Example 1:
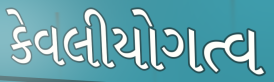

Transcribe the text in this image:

કેવલીયોગત્વ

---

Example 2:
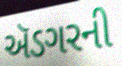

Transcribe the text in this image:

ઍડગરની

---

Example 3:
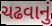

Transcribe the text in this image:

ચઢવાનું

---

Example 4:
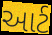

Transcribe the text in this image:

આર્ટ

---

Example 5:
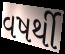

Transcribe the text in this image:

વષર્થી